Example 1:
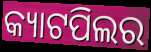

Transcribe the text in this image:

କ୍ୟାଟପିଲର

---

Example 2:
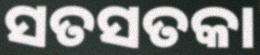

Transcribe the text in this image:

ସତସତକା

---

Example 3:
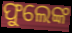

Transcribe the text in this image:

ଫୁଲେଙ୍କ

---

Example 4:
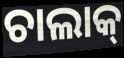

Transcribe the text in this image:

ଚାଲାକ୍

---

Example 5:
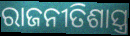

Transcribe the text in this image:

ରାଜନୀତିଶାସ୍ତ୍ର